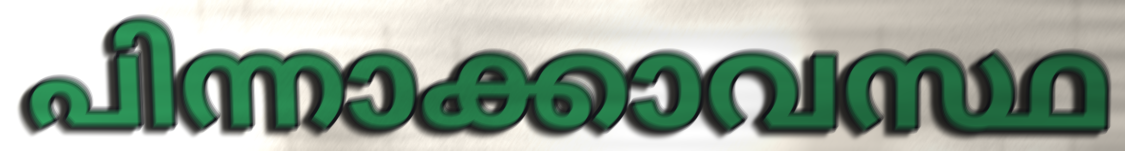
പിന്നാക്കാവസ്ഥ